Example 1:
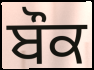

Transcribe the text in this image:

ਬੌਕ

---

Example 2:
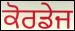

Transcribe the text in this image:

ਕੋਰਡੇਜ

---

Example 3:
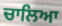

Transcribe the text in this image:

ਚਾਲਿਆ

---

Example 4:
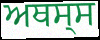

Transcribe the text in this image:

ਅਥਸ੍ਸ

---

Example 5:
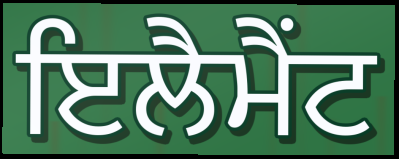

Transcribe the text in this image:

ਇਲੈਮੈਂਟ